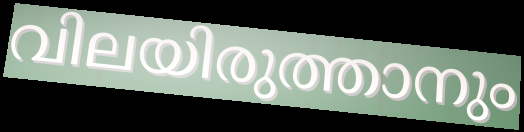
വിലയിരുത്താനും